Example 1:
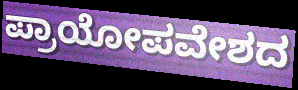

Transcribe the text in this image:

ಪ್ರಾಯೋಪವೇಶದ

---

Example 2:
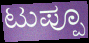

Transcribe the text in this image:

ಟುಪ್ಪೂ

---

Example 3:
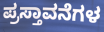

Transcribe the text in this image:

ಪ್ರಸ್ತಾವನೆಗಳ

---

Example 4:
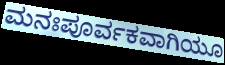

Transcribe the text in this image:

ಮನಃಪೂರ್ವಕವಾಗಿಯೂ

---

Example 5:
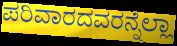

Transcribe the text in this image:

ಪರಿವಾರದವರನ್ನೆಲ್ಲಾ